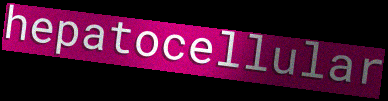
hepatocellular